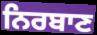
ਨਿਰਬਾਣ